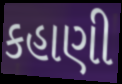
કહાણી